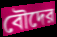
বৌদের